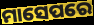
ମାସେପରେ